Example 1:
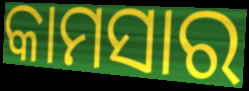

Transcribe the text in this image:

କାମସାର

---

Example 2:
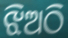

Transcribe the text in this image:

ଝିଅଠି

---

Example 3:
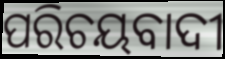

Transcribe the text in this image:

ପରିଚୟବାଦୀ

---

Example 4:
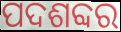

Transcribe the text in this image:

ପଦଶବ୍ଦର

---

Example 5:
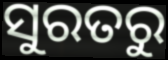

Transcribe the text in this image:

ସୁରତରୁ